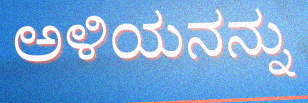
ಅಳಿಯನನ್ನು